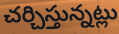
చర్చిస్తున్నట్లు